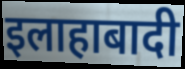
इलाहाबादी